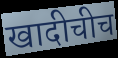
खादीचीच